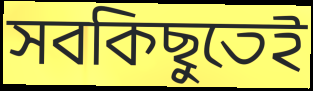
সবকিছুতেই